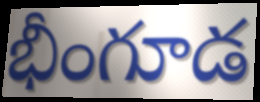
భీంగూడ